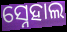
ସ୍ନେହାଲ